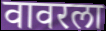
वावरला